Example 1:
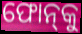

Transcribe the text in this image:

ଫୋନ୍‌କୁ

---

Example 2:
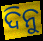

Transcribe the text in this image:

ଦିନୁ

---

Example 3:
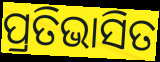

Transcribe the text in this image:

ପ୍ରତିଭାସିତ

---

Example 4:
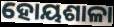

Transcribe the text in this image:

ହୋୟଶାଳା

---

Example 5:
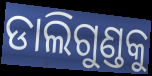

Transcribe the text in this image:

ଡାଲିଗୁଣ୍ଡକୁ